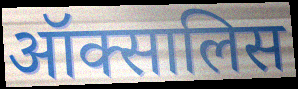
ऑक्सालिस